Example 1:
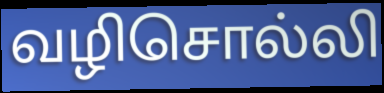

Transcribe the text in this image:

வழிசொல்லி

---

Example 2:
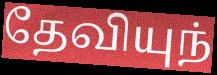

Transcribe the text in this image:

தேவியுந்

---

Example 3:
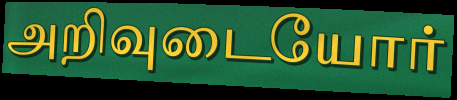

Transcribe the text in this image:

அறிவுடையோர்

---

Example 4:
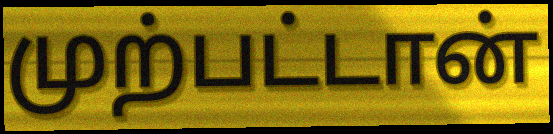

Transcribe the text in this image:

முற்பட்டான்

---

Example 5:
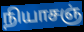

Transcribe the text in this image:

நியாசஞ்